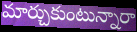
మార్చుకుంటున్నారా